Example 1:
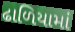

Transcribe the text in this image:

ઢાળિયામાં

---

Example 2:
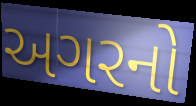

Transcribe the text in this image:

અગરનો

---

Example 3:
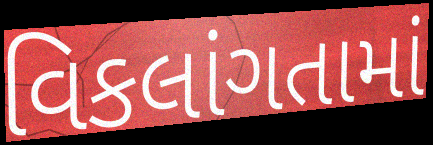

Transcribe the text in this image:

વિકલાંગતામાં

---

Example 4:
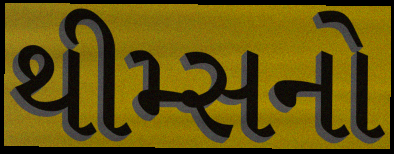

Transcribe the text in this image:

થીમ્સનો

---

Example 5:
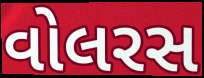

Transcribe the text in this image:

વોલરસ